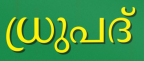
ധ്രുപദ്